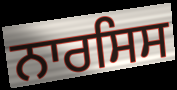
ਨਾਰਸਿਸ